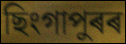
ছিংগাপুৰৰ